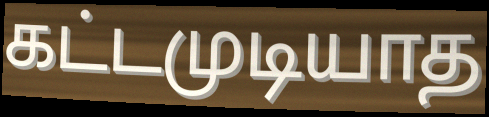
கட்டமுடியாத